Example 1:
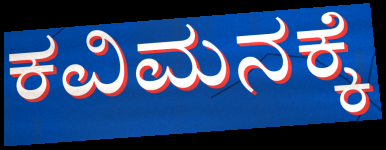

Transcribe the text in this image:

ಕವಿಮನಕ್ಕೆ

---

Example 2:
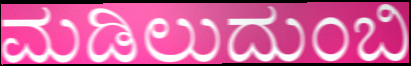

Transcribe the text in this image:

ಮಡಿಲುದುಂಬಿ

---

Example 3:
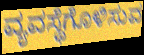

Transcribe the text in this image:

ವ್ಯವಸ್ಥೆಗೊಳಿಸುವ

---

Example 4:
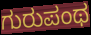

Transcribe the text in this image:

ಗುರುಪಂಥ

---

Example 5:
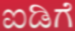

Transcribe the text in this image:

ಐಡಿಗೆ